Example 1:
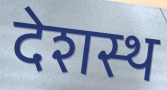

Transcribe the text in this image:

देशस्थ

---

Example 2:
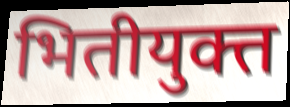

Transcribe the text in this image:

भितीयुक्त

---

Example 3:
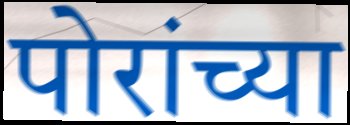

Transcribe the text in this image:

पोरांच्या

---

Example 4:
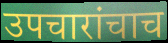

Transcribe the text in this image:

उपचारांचाच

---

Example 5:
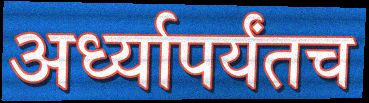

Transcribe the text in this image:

अर्ध्यापर्यंतच